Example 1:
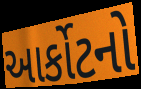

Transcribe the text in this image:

આર્કોટનો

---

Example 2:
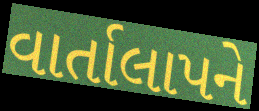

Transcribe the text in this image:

વાર્તાલાપને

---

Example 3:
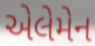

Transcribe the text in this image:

એલેમેન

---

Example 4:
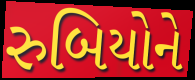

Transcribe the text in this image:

રુબિયોને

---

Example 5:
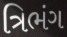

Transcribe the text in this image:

ત્રિભંગ